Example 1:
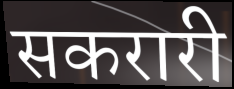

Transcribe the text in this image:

सकरारी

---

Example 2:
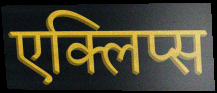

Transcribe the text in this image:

एक्लिप्स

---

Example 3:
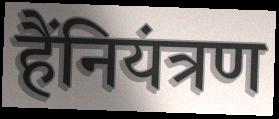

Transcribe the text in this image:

हैंनियंत्रण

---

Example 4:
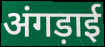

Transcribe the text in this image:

अंगड़ाई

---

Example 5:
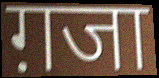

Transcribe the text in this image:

ग़जा